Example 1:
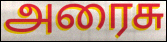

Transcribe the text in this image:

அரைசு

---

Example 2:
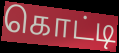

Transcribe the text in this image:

கொட்டி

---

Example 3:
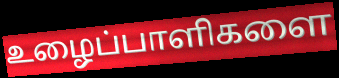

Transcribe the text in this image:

உழைப்பாளிகளை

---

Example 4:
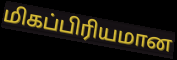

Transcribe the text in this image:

மிகப்பிரியமான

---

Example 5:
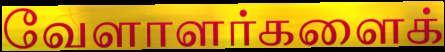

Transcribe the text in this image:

வேளாளர்களைக்